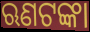
ଋଣଟଙ୍କା